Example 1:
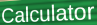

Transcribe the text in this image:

Calculator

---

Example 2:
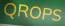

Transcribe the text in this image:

QROPS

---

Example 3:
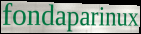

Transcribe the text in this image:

fondaparinux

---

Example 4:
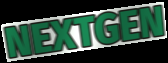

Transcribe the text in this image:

NEXTGEN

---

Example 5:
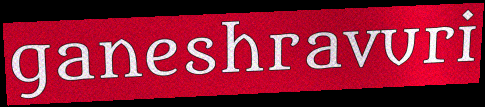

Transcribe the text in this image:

ganeshravuri